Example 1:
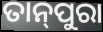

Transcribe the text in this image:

ତାନ୍‌ପୁରା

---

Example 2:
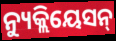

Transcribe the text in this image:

ନ୍ୟୁକ୍ଲିୟେସନ୍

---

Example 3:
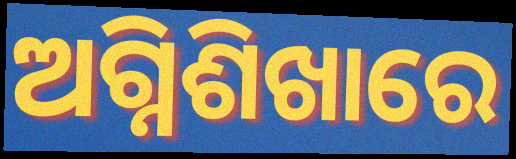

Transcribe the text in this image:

ଅଗ୍ନିଶିଖାରେ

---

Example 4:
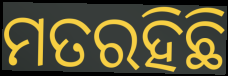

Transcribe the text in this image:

ମତରହିଛି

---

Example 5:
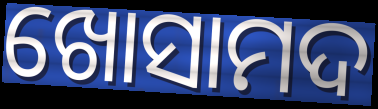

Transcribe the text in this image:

ଖୋସାମଦ